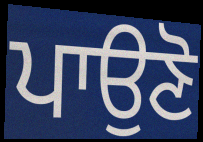
ਪਾਉਣੋ